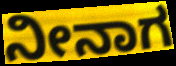
ನೀನಾಗ